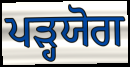
ਪੜ੍ਹਯੋਗ